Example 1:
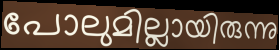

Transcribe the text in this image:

പോലുമില്ലായിരുന്നു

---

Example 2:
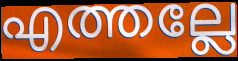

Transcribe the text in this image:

എത്തല്ലേ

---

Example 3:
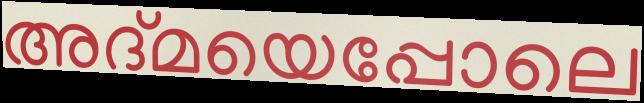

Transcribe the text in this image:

അദ്മയെപ്പോലെ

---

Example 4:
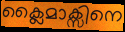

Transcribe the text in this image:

ക്ലൈമാക്സിനെ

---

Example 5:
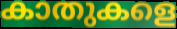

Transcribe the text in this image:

കാതുകളെ